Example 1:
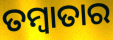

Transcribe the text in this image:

ତମ୍ବାତାର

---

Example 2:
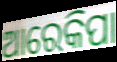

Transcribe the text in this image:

ଆରେକିପା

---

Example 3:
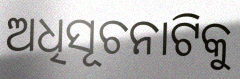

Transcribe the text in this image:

ଅଧିସୂଚନାଟିକୁ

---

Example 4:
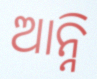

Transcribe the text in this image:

ଆନ୍ନି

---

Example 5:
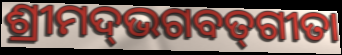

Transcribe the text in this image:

ଶ୍ରୀମଦ୍‌ଭଗବତ୍‌ଗୀତା